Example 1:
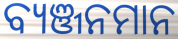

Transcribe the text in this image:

ବ୍ୟଞ୍ଜନମାନ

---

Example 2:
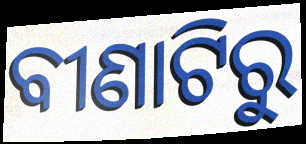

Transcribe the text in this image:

ବୀଣାଟିରୁ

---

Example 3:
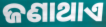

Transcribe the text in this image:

ଜଣାଥାଏ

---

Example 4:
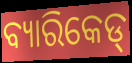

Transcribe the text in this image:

ବ୍ୟାରିକେଡ୍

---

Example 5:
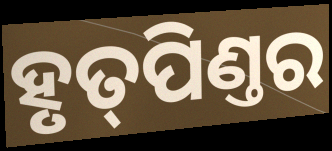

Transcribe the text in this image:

ହୃତ୍‌ପିଣ୍ତର